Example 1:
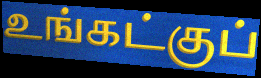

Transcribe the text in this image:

உங்கட்குப்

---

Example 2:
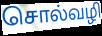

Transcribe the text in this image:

சொல்வழி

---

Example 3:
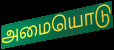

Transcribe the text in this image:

அமையொடு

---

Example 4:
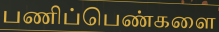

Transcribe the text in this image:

பணிப்பெண்களை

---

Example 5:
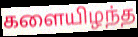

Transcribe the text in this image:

களையிழந்த